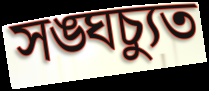
সঙ্ঘচ্যুত